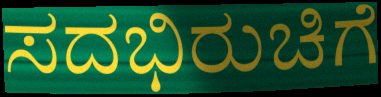
ಸದಭಿರುಚಿಗೆ